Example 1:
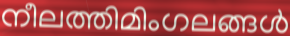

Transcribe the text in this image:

നീലത്തിമിംഗലങ്ങൾ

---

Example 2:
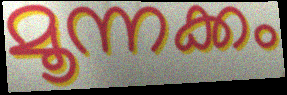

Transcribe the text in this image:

മൂന്നക്കം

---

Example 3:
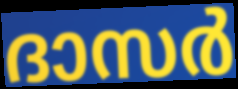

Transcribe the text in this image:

ദാസർ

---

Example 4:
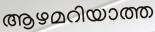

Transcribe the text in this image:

ആഴമറിയാത്ത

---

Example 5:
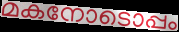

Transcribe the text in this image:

മകനോടൊപ്പം